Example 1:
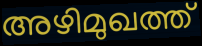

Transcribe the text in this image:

അഴിമുഖത്ത്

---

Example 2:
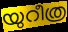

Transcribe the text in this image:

യുറീത്ര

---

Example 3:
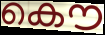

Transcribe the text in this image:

കൌ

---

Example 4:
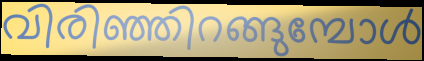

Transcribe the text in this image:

വിരിഞ്ഞിറങ്ങുമ്പോൾ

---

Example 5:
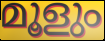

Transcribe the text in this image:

മൂളും